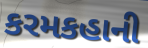
કરમકહાની